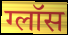
ग्लॉस